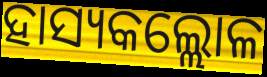
ହାସ୍ୟକଲ୍ଲୋଳ